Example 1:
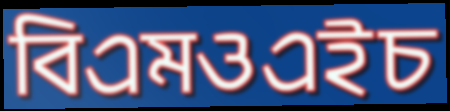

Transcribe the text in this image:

বিএমওএইচ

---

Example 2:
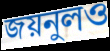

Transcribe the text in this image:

জয়নুলও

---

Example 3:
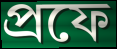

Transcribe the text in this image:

প্রফে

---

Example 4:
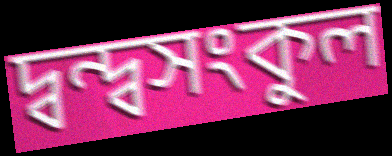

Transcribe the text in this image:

দ্বন্দ্বসংকুল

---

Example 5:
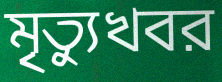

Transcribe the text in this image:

মৃত্যুখবর